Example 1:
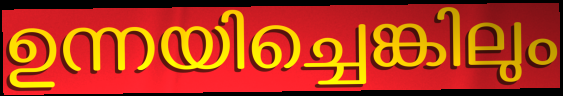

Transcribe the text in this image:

ഉന്നയിച്ചെങ്കിലും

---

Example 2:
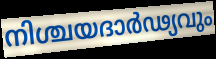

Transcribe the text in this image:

നിശ്ചയദാർഢ്യവും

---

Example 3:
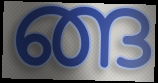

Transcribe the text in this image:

ങ്ങ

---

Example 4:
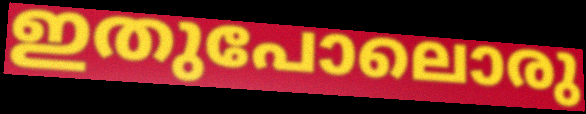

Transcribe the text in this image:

ഇതുപോലൊരു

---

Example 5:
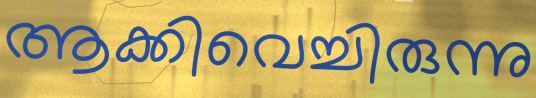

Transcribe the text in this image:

ആക്കിവെച്ചിരുന്നു